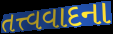
તત્ત્વવાદના